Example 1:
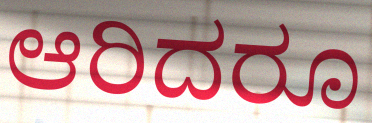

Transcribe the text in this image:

ಆರಿದರೂ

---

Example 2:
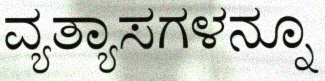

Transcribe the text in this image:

ವ್ಯತ್ಯಾಸಗಳನ್ನೂ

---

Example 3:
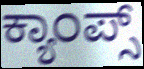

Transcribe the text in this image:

ಕ್ಯಾಂಪ್ಸ್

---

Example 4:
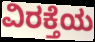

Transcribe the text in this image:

ವಿರಕ್ತೆಯ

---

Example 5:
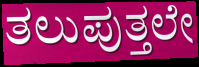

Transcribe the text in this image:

ತಲುಪುತ್ತಲೇ